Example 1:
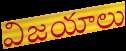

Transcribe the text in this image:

విజయాలు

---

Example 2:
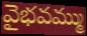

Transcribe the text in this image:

వైభవమ్ము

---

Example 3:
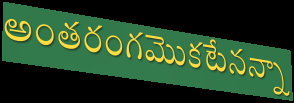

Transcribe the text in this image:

అంతరంగమొకటేనన్నా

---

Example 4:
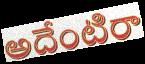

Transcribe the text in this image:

అదేంటిరా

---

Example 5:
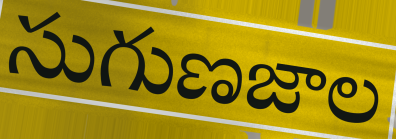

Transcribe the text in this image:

సుగుణజాల